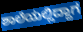
ಶಾಲೆಯಲ್ಲಿದ್ದಾಗ